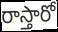
రాస్తారో